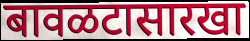
बावळटासारखा